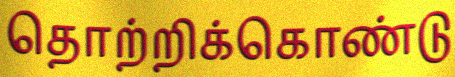
தொற்றிக்கொண்டு